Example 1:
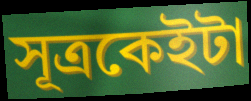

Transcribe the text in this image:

সূত্ৰকেইটা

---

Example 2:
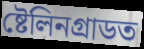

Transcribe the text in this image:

ষ্টেলিনগ্ৰাডত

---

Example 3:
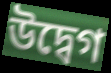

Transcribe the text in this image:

উদ্বেগ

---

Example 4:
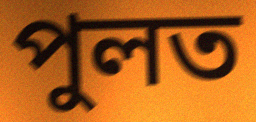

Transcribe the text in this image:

পুলত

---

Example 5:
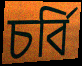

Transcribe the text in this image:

চৰ্বি